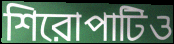
শিরোপাটিও